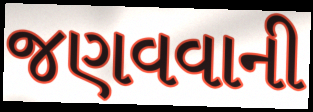
જણવવાની